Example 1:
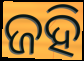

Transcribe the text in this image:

ଜହି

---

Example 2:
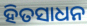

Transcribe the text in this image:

ହିତସାଧନ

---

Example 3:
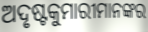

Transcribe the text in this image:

ଅଦୃଷ୍ଟକୁମାରୀମାନଙ୍କର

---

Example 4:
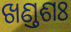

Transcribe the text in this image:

ଖଣ୍ଡଶଃ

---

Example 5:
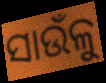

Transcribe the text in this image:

ସାଉଁଳୁ